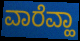
ವಾರೆವ್ಹಾ